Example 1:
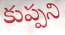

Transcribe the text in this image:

కుప్పని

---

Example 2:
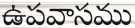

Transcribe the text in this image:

ఉపవాసము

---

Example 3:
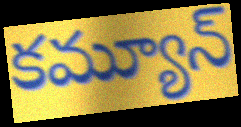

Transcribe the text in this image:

కమ్యూన్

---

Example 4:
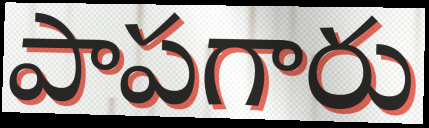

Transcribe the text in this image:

పాపగారు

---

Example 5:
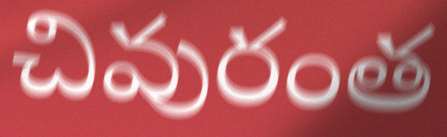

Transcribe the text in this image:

చివురంత